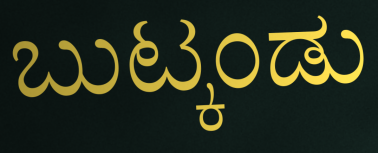
ಬುಟ್ಕಂಡು